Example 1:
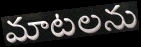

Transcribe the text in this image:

మాటలను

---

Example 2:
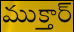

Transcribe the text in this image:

ముక్తార్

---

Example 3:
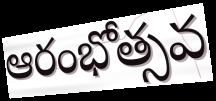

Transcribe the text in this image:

ఆరంభోత్సవ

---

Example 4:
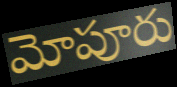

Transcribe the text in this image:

మోపూరు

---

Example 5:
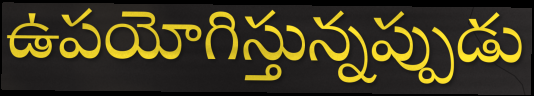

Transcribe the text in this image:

ఉపయోగిస్తున్నప్పుడు